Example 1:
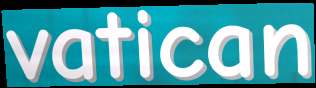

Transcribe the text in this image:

vatican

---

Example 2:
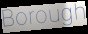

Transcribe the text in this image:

Borough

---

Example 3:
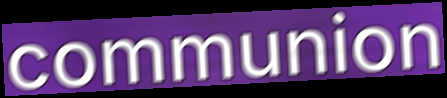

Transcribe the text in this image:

communion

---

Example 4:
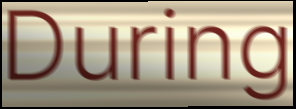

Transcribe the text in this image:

During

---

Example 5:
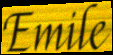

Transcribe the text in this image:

Emile